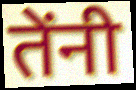
तेंनी